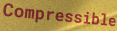
Compressible